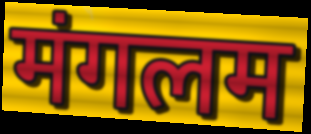
मंगलम